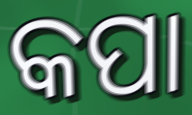
କପା